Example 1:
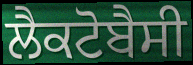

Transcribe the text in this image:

ਲੈਕਟੋਬੈਸੀ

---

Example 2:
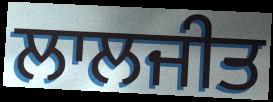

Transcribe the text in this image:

ਲਾਲਜੀਤ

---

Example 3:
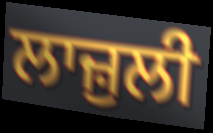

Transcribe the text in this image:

ਲਾਜ਼ੁਲੀ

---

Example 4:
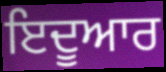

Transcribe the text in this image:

ਇਦੂਆਰ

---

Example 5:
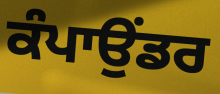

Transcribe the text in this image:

ਕੰਪਾਉਂਡਰ